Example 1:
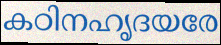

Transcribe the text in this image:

കഠിനഹൃദയരേ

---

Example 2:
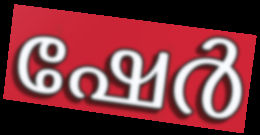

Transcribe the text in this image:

ഷേർ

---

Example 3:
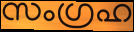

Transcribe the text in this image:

സംഗ്രഹ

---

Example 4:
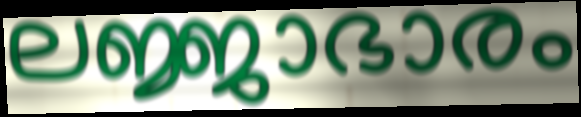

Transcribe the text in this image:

ലജ്ജാഭാരം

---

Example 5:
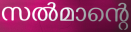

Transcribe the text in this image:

സൽമാന്റെ